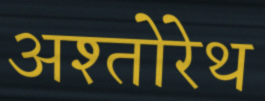
अश्तोरेथ